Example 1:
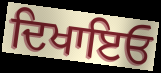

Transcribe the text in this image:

ਦਿਖਾਇਓ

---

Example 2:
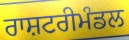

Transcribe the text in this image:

ਰਾਸ਼ਟਰੀਮੰਡਲ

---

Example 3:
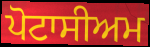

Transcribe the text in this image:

ਪੋਟਾਸੀਅਮ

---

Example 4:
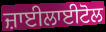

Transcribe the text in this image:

ਜ਼ਾਈਲਾਈਟੋਲ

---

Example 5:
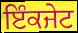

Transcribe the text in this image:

ਇੰਕਜੇਟ